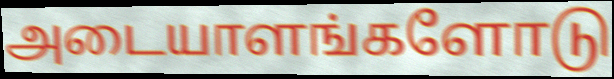
அடையாளங்களோடு